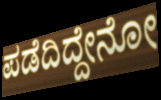
ಪಡೆದಿದ್ದೇನೋ